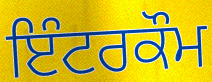
ਇੰਟਰਕੌਮ